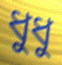
ধুধু